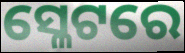
ସ୍ଳେଟରେ